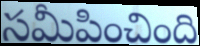
సమీపించింది